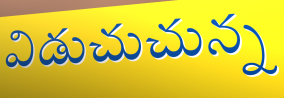
విడుచుచున్న